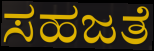
ಸಹಜತೆ